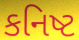
કનિષ્ટ